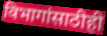
विभागांसाठीही